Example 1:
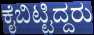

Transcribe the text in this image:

ಕೈಬಿಟ್ಟಿದ್ದರು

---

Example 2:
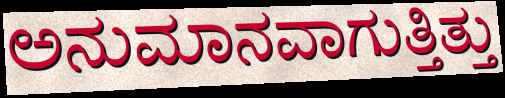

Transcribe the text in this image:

ಅನುಮಾನವಾಗುತ್ತಿತ್ತು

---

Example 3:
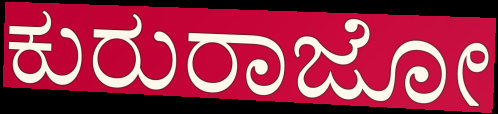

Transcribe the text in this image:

ಕುರುರಾಜೋ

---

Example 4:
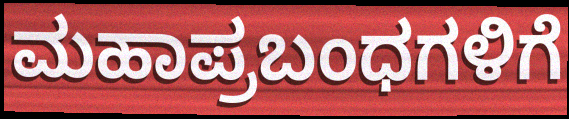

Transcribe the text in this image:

ಮಹಾಪ್ರಬಂಧಗಳಿಗೆ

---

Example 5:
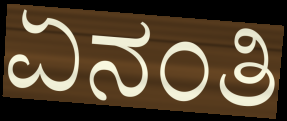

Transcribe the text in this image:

ಏನಂತಿ